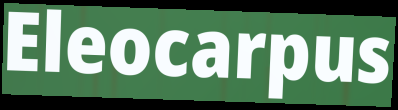
Eleocarpus